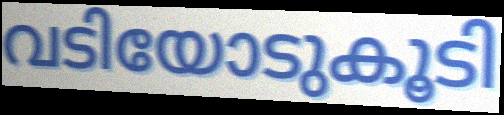
വടിയോടുകൂടി